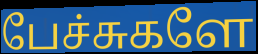
பேச்சுகளே